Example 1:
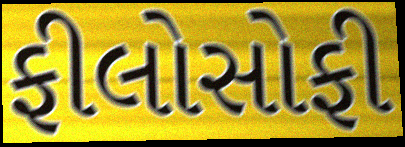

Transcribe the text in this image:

ફીલોસોફી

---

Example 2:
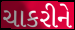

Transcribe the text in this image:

ચાકરીને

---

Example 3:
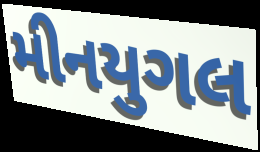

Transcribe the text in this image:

મીનયુગલ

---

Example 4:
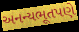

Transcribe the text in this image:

અનન્યભૂતપણે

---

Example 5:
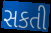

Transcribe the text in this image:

સકતી